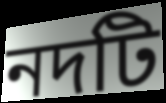
নদটি